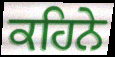
ਕਹਿਨੇ